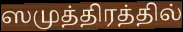
ஸமுத்திரத்தில்